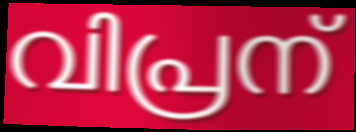
വിപ്രന്